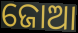
ଜୋଆ